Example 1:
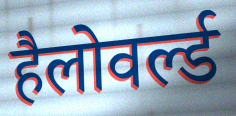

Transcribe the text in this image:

हैलोवर्ल्ड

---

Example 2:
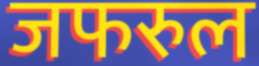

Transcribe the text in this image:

जफरुल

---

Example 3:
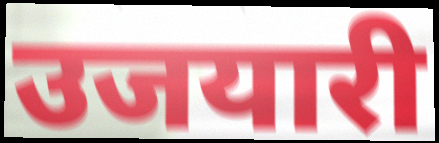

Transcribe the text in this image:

उजयारी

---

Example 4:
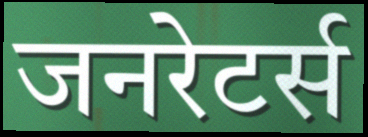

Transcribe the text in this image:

जनरेटर्स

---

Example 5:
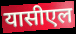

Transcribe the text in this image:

यासीएल